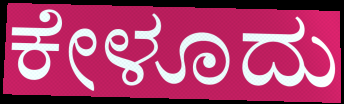
ಕೇಳೂದು